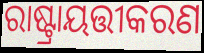
ରାଷ୍ଟ୍ରାୟତ୍ତୀକରଣ